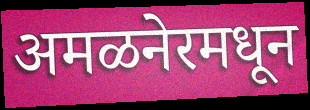
अमळनेरमधून